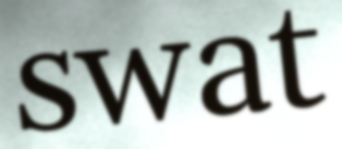
swat